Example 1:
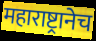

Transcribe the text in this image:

महाराष्ट्रानेच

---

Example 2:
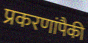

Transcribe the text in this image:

प्रकरणांपैकी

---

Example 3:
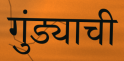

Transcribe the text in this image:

गुंड्याची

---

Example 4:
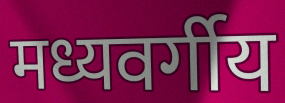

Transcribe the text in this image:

मध्यवर्गीय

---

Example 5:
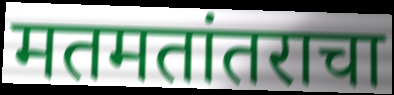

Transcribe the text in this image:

मतमतांतराचा